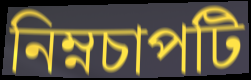
নিম্নচাপটি